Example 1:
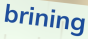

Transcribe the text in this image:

brining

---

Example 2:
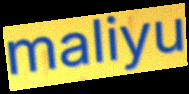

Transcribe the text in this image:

maliyu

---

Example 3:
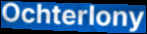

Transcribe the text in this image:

Ochterlony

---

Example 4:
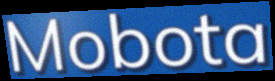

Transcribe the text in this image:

Mobota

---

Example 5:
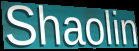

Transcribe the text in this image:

Shaolin